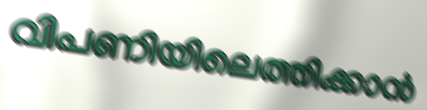
വിപണിയിലെത്തിക്കാൻ